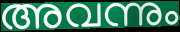
അവന്നും